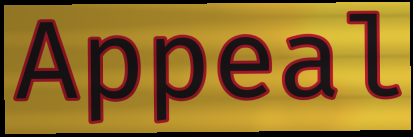
Appeal